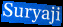
Suryaji